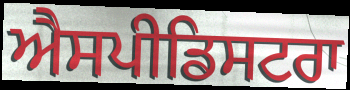
ਐਸਪੀਡਿਸਟਰਾ